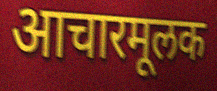
आचारमूलक